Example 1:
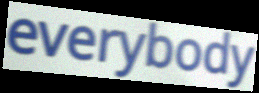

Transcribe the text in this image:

everybody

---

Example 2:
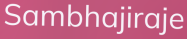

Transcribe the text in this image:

Sambhajiraje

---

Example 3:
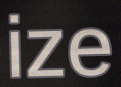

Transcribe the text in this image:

ize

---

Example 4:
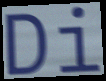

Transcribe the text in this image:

Di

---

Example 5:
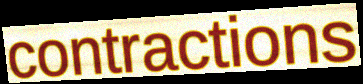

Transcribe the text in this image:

contractions